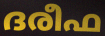
ദരീഫ